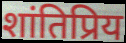
शांतिप्रिय